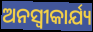
ଅନସ୍ବୀକାର୍ଯ୍ୟ